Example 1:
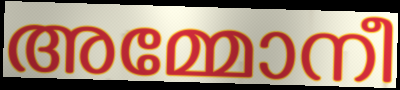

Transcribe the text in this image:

അമ്മോനീ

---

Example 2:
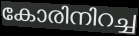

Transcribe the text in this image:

കോരിനിറച്ച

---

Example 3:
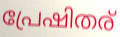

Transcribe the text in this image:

പ്രേഷിതര്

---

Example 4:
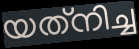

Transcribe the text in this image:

യത്‌നിച്ച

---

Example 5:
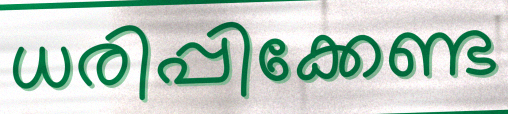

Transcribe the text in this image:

ധരിപ്പിക്കേണ്ട